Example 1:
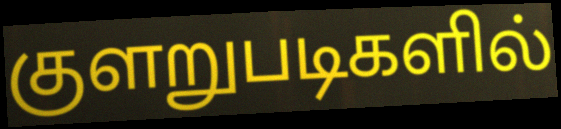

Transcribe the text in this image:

குளறுபடிகளில்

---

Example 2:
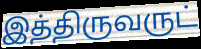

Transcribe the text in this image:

இத்திருவருட்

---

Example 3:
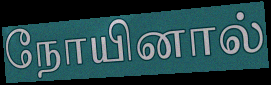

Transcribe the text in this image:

நோயினால்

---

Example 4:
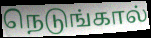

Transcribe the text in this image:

நெடுங்கால்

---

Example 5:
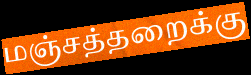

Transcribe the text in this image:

மஞ்சத்தறைக்கு